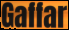
Gaffar